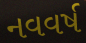
નવવર્ષ